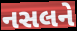
નસલને